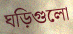
ঘড়িগুলো